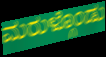
ಮರುಳ್ಗೊಂಡು